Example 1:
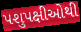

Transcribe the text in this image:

પશુપક્ષીઓથી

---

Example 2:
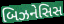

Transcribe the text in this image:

બિઝનેસિસ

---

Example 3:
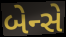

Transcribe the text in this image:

બેન્સે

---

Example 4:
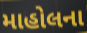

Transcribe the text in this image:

માહોલના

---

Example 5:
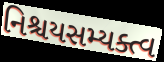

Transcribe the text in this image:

નિશ્ચયસમ્યક્ત્વ